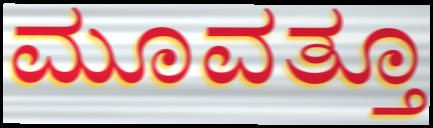
ಮೂವತ್ತೂ